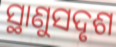
ସ୍ଥାଣୁସଦୃଶ